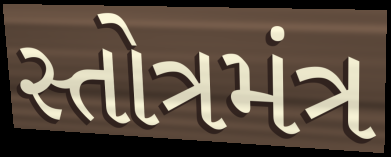
સ્તોત્રમંત્ર